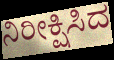
ನಿರೀಕ್ಷಿಸಿದ